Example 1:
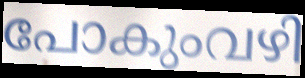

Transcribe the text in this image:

പോകുംവഴി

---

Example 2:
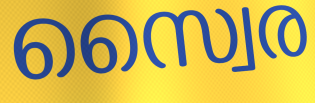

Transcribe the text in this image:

സ്വൈര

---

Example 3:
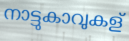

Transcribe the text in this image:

നാട്ടുകാവുകള്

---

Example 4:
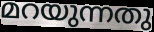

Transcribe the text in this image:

മറയുന്നതു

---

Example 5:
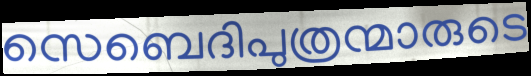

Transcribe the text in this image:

സെബെദിപുത്രന്മാരുടെ